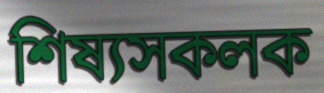
শিষ্যসকলক